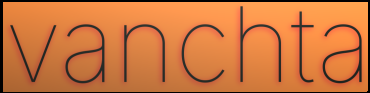
vanchta